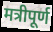
मत्रीपूर्ण